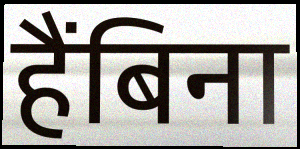
हैंबिना